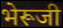
भेरूजी